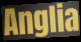
Anglia